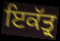
ਇਕੱਤ੍ਰ